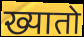
ख्यातो